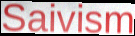
Saivism